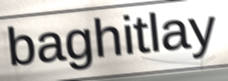
baghitlay